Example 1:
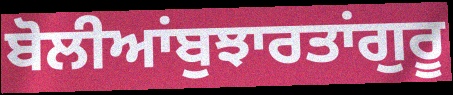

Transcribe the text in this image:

ਬੋਲੀਆਂਬੁਝਾਰਤਾਂਗੁਰੂ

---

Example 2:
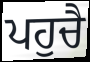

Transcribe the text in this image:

ਪਹੁਚੈ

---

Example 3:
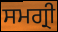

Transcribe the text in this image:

ਸਮਗ੍ਰੀ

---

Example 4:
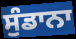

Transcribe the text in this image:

ਸੁੰਡਾਨਾ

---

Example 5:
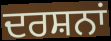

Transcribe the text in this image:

ਦਰਸ਼ਨਾਂ